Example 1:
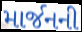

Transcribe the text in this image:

માર્જનની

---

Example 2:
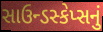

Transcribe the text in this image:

સાઉન્ડસ્કેપ્સનું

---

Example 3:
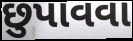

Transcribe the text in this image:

છુપાવવા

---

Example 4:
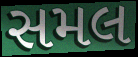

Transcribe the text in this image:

સમલ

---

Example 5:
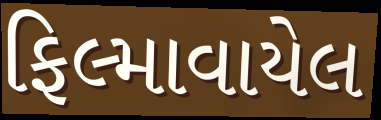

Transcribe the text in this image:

ફિલ્માવાયેલ